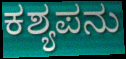
ಕಶ್ಯಪನು